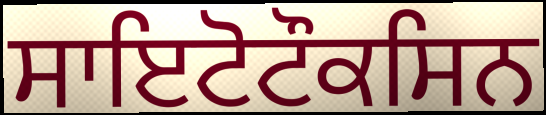
ਸਾਇਟੋਟੌਕਸਿਨ